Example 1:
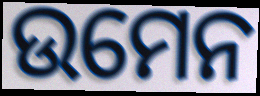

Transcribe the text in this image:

ଉମେନ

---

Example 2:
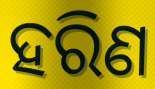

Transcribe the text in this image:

ହରିଣ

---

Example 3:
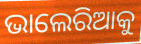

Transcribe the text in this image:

ଭାଲେରିଆକୁ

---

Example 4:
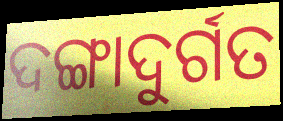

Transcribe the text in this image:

ଦଙ୍ଗାଦୁର୍ଗତ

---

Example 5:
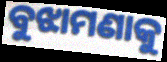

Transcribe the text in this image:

ବୁଝାମଣାକୁ